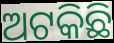
ଅଟକିଛି